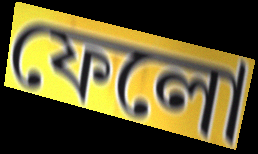
ফেলো